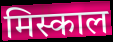
मिस्काल